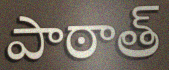
పాఠాత్